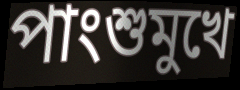
পাংশুমুখে